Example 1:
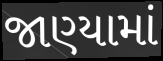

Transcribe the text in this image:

જાણ્યામાં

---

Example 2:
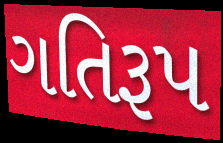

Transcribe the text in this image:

ગતિરૂપ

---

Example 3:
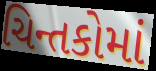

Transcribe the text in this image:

ચિન્તકોમાં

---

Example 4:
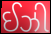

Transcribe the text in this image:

ઈઝી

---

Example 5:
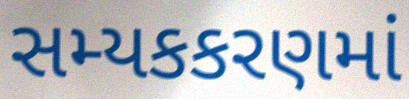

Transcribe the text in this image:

સમ્યકકરણમાં